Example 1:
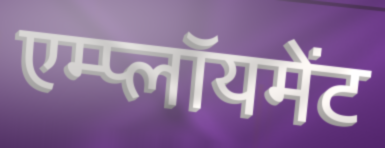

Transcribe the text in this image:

एम्प्लॉयमेंट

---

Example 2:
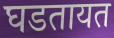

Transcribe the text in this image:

घडतायत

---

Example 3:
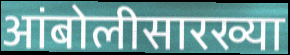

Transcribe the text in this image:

आंबोलीसारख्या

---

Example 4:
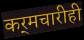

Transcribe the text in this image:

कर्मचारीही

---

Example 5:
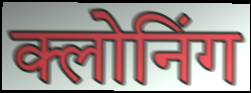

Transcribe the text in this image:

क्लोनिंग